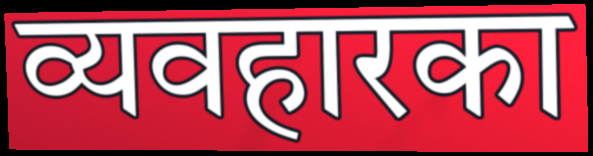
व्यवहारका